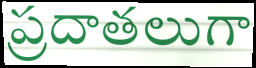
ప్రదాతలుగా